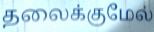
தலைக்குமேல்